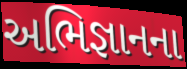
અભિજ્ઞાનના